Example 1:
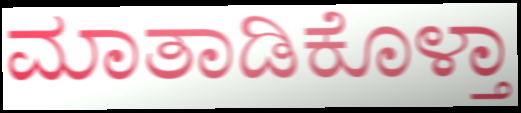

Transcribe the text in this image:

ಮಾತಾಡಿಕೊಳ್ತಾ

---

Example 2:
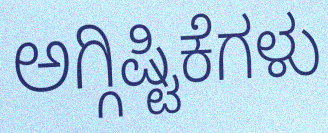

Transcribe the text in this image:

ಅಗ್ಗಿಷ್ಟಿಕೆಗಳು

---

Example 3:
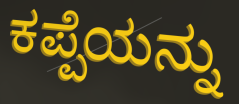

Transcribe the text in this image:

ಕಪ್ಪೆಯನ್ನು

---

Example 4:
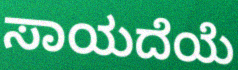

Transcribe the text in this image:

ಸಾಯದೆಯೆ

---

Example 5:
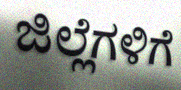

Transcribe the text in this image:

ಜಿಲ್ಲೆಗಳಿಗೆ